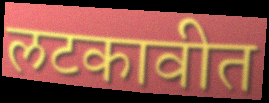
लटकावीत